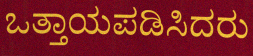
ಒತ್ತಾಯಪಡಿಸಿದರು